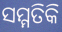
ସମ୍ମତିକି